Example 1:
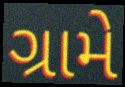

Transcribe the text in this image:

ગ્રામે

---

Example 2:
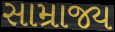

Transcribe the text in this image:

સામ્રાજ્ય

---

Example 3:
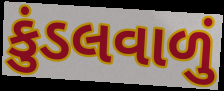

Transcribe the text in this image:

કુંડલવાળું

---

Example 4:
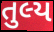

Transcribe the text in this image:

તુલ્ય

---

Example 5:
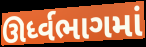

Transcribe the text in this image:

ઊર્ધ્વભાગમાં